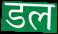
डल